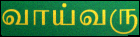
வாய்வரு